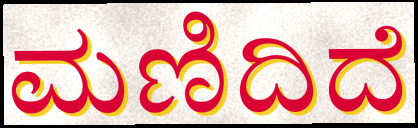
ಮಣಿದಿದೆ